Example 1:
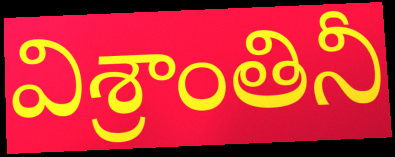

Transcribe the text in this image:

విశ్రాంతినీ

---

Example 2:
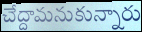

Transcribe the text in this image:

చేద్దామనుకున్నారు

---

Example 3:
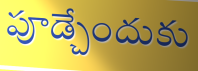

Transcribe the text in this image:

పూడ్చేందుకు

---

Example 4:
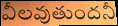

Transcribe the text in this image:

వీలవుతుందనీ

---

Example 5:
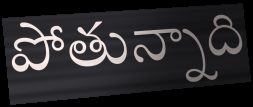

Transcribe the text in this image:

పోతున్నాది